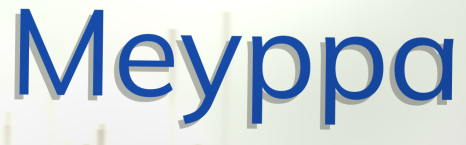
Meyppa